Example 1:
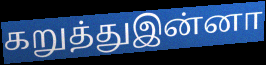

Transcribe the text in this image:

கறுத்துஇன்னா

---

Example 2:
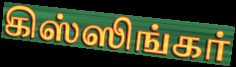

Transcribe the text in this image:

கிஸ்ஸிங்கர்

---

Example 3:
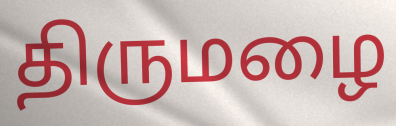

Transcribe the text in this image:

திருமழை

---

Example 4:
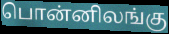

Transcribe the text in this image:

பொன்னிலங்கு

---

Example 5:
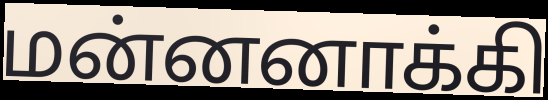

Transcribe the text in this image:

மன்னனாக்கி